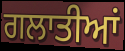
ਗਲਾਤੀਆਂ